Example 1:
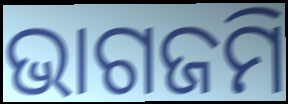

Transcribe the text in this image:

ଭାଗଜମି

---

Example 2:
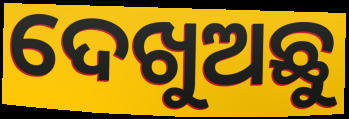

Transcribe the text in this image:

ଦେଖୁଅଛୁ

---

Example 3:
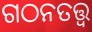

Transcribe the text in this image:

ଗଠନତତ୍ତ୍ୱ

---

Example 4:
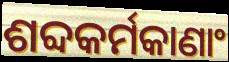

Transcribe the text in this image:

ଶବ୍ଦକର୍ମକାଣାଂ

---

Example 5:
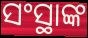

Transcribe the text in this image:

ସଂସ୍ଥାଙ୍କ